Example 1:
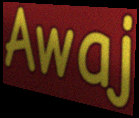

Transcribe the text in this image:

Awaj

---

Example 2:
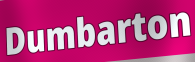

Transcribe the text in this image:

Dumbarton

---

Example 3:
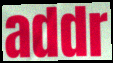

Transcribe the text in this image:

addr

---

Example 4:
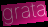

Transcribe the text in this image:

grata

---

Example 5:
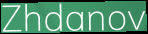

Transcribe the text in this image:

Zhdanov